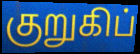
குறுகிப்